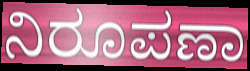
ನಿರೂಪಣಾ